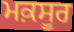
ਮਕ਼ਸੂਰ